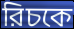
রিচকে